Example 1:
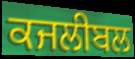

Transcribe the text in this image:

ਕਜਲੀਬਲ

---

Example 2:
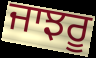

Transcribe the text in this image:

ਜਾਝਰੂ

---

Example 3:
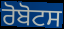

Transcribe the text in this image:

ਰੋਬੋਟਸ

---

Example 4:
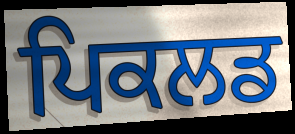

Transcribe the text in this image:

ਪਿਕਲਡ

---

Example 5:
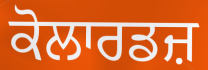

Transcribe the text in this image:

ਕੋਲਾਰਡਜ਼